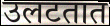
उलटतात